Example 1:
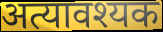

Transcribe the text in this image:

अत्यावश्यक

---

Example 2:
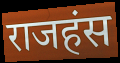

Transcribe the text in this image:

राजहंस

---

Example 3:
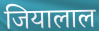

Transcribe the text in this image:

जियालाल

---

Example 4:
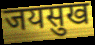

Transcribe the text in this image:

जयसुख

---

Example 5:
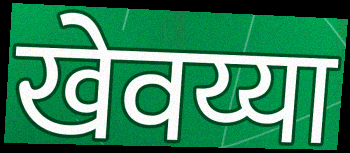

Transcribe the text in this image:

खेवय्या